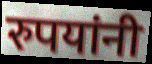
रुपयांनी